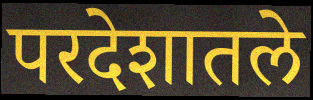
परदेशातले